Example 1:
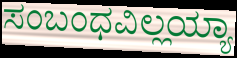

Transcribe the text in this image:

ಸಂಬಂಧವಿಲ್ಲಯ್ಯಾ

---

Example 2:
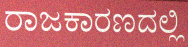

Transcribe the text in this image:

ರಾಜಕಾರಣದಲ್ಲಿ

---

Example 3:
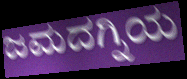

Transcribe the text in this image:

ಜಮದಗ್ನಿಯ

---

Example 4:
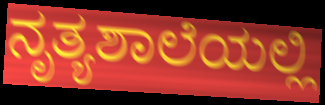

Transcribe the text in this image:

ನೃತ್ಯಶಾಲೆಯಲ್ಲಿ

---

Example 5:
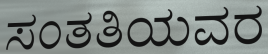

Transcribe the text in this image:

ಸಂತತಿಯವರ